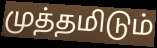
முத்தமிடும்